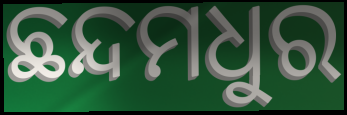
ଛନ୍ଦମଧୁର